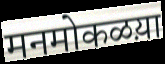
मनमोकळय़ा